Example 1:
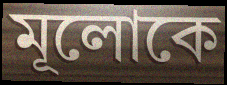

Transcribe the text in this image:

মূলোকে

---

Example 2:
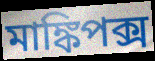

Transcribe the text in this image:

মাঙ্কিপক্স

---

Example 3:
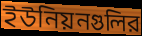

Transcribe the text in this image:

ইউনিয়নগুলির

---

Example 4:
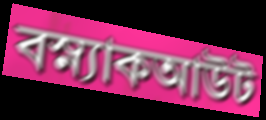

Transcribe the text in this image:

বস্ন্যাকআউট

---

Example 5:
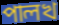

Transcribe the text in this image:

পালখ